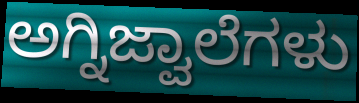
ಅಗ್ನಿಜ್ವಾಲೆಗಳು